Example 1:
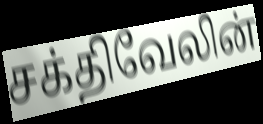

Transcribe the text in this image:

சக்திவேலின்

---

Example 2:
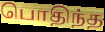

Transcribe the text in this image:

பொதிந்த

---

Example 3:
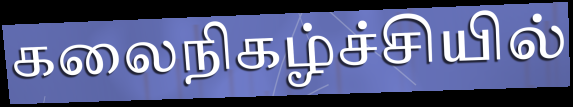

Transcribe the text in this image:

கலைநிகழ்ச்சியில்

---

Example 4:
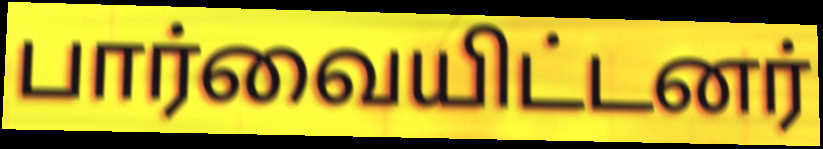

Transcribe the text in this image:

பார்வையிட்டனர்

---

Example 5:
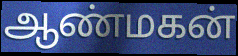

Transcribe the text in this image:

ஆண்மகன்